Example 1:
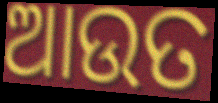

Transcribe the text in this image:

ଆଉତ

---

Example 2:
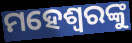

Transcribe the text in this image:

ମହେଶ୍ଵରଙ୍କୁ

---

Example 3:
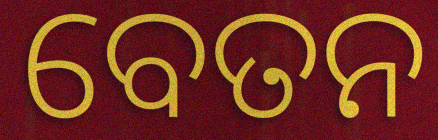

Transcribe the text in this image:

ବେତନ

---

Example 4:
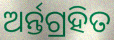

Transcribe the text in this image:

ଅର୍ନ୍ତଗ୍ରହିତ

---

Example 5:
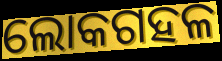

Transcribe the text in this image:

ଲୋକଗହଳ